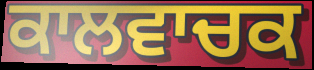
ਕਾਲਵਾਚਕ